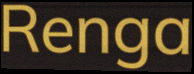
Renga